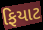
ફિયાટ